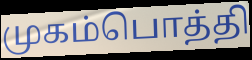
முகம்பொத்தி